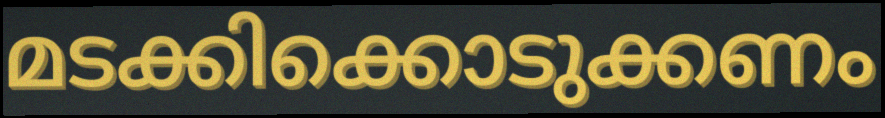
മടക്കിക്കൊടുക്കണം